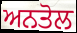
ਅਨਤੋਲ